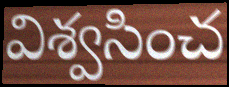
విశ్వసించ